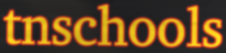
tnschools